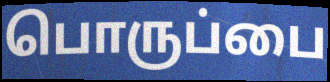
பொருப்பை